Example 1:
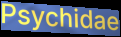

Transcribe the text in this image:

Psychidae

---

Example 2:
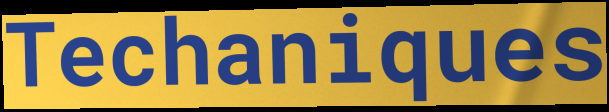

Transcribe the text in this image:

Techaniques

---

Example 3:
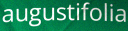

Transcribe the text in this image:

augustifolia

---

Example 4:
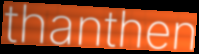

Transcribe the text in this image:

thanthen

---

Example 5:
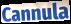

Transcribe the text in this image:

Cannula